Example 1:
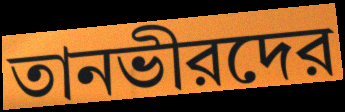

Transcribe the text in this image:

তানভীরদের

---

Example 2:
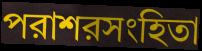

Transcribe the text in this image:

পরাশরসংহিতা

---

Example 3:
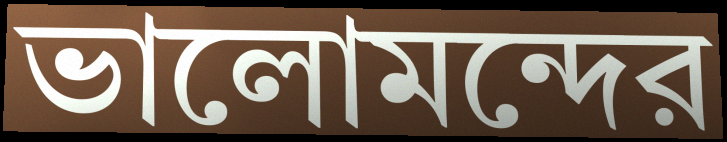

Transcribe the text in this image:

ভালোমন্দের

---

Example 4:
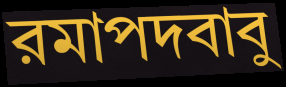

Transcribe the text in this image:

রমাপদবাবু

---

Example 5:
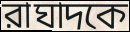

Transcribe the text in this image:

রাঘাদকে